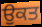
ਉੁਕਤ